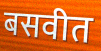
बसवीत